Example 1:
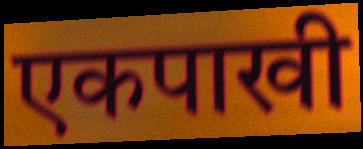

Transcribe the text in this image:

एकपाखी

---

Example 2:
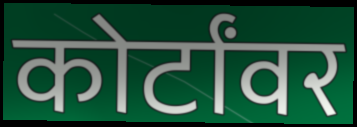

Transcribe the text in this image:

कोर्टांवर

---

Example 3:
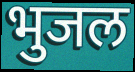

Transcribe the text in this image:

भुजल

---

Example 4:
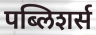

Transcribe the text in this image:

पब्लिशर्स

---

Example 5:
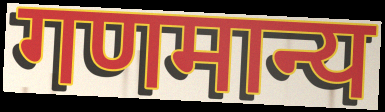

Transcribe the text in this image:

गणमान्य